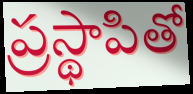
ప్రస్థాపితో